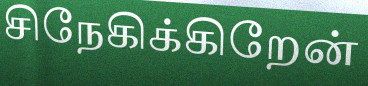
சிநேகிக்கிறேன்